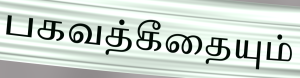
பகவத்கீதையும்